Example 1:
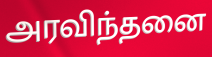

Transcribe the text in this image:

அரவிந்தனை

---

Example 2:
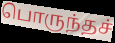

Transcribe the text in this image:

பொருந்தச்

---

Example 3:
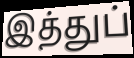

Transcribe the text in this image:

இத்துப்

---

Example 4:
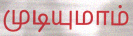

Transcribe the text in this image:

முடியுமாம்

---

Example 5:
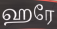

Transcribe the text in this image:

ஹரே